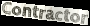
Contractor